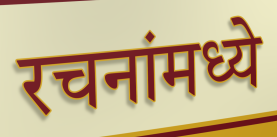
रचनांमध्ये